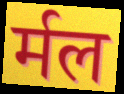
र्मल